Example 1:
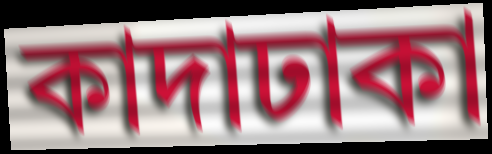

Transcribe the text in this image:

কাদাঢাকা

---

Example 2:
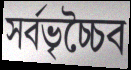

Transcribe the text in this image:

সর্বভৃচ্চৈব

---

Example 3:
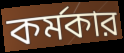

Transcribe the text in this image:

কর্মকার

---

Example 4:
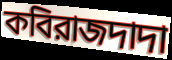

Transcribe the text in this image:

কবিরাজদাদা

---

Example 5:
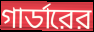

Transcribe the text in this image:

গার্ডারের